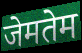
जेमतेम